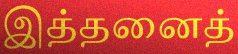
இத்தனைத்